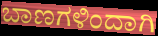
ಬಾಣಗಳಿಂದಾಗಿ